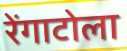
रेंगाटोला